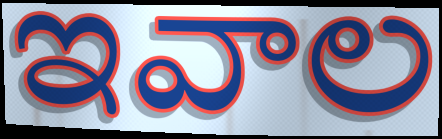
ఇవాల